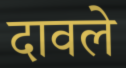
दावले